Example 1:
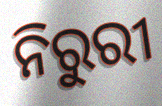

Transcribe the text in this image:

ନିରୁରୀ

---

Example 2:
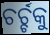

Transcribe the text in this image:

ଚର୍ଚ୍ଚକୁ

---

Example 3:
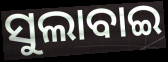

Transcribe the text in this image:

ସୁଲାବାଇ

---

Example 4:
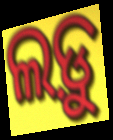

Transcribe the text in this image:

ଲଡ଼ୁ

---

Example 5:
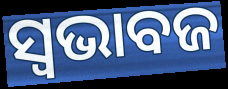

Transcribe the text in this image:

ସ୍ୱଭାବଜ